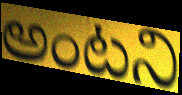
అంటని